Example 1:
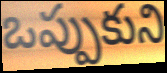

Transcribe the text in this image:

ఒప్పుకుని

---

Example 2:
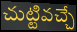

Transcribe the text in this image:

చుట్టివచ్చే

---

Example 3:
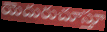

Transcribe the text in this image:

యెదురుచూస్తూ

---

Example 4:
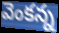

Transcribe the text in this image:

వెంకన్న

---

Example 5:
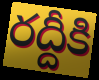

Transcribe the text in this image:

రద్దీకి